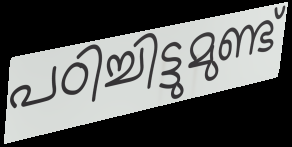
പഠിച്ചിട്ടുമുണ്ട്